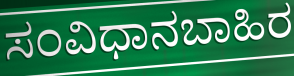
ಸಂವಿಧಾನಬಾಹಿರ